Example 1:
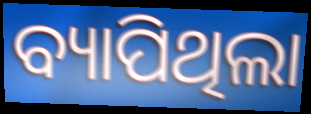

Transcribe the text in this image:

ବ୍ୟାପିଥିଲା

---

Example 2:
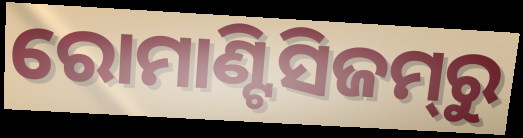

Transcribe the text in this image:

ରୋମାଣ୍ଟିସିଜମ୍‌ରୁ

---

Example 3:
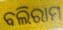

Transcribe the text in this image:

ବଲିରାମ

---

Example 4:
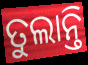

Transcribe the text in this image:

ତୁଲାନ୍ତି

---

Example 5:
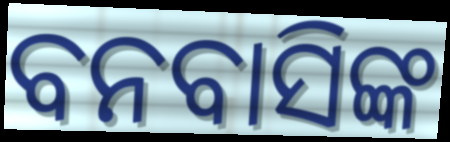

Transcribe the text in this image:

ବନବାସିଙ୍କ